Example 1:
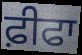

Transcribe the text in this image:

ਫ਼ੀਫਾ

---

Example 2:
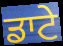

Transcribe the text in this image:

ਡਾਟੇ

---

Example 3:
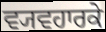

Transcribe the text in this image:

ਵ੍ਯਵਹਾਰਕੇ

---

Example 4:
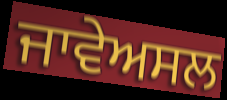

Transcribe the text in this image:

ਜਾਵੇਅਸਲ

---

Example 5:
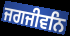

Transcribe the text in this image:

ਜਗਜੀਵਨਿ